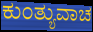
ಕುಂತ್ಯುವಾಚ